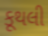
કૂથલી